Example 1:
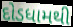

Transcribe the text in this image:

દોડધામથી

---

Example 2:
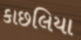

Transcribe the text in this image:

કાછલિયા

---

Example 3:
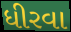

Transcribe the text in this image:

ધીરવા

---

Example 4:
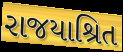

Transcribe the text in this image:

રાજયાશ્રિત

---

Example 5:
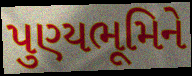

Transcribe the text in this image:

પુણ્યભૂમિને